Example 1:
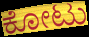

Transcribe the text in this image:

ಕೋಟು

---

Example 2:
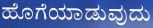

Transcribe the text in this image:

ಹೊಗೆಯಾಡುವುದು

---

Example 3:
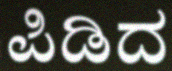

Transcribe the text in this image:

ಪಿಡಿದ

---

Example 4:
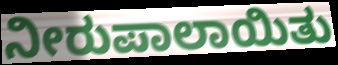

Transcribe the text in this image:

ನೀರುಪಾಲಾಯಿತು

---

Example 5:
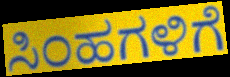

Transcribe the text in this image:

ಸಿಂಹಗಳಿಗೆ